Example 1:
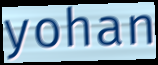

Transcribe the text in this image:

yohan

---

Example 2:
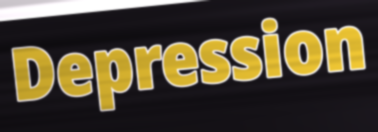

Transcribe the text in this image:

Depression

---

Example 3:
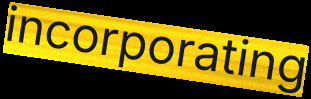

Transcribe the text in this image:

incorporating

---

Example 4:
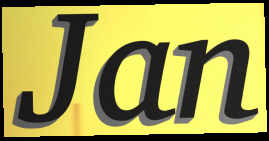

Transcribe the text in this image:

Jan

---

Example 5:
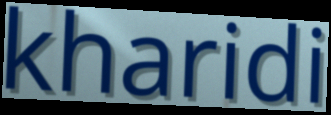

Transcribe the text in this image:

kharidi